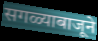
सगळ्याबाजूने